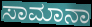
ಸಾಮಾನಾ